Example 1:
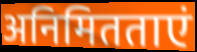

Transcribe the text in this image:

अनिमितताएं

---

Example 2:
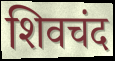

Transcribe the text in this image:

शिवचंद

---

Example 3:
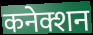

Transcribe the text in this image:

कनेक्‍शन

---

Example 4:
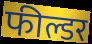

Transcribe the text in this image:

फील्डर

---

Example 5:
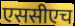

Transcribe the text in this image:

एससीएच